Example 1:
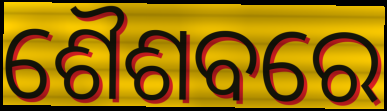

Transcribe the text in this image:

ଶୈଶବରେ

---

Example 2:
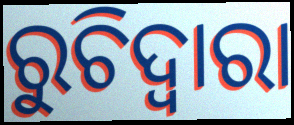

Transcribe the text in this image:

ରୁଚିଦ୍ୱାରା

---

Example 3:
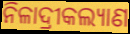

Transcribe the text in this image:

ନିଳାଦ୍ରୀକଲ୍ୟାଣ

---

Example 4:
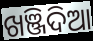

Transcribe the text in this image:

ଖଞ୍ଜିଦିଆ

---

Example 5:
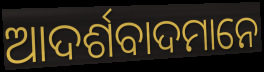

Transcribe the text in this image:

ଆଦର୍ଶବାଦମାନେ